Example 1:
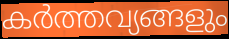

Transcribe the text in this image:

കർത്തവ്യങ്ങളും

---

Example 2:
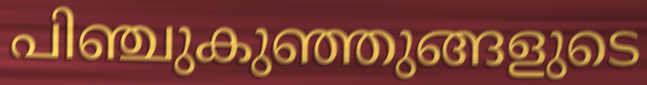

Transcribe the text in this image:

പിഞ്ചുകുഞ്ഞുങ്ങളുടെ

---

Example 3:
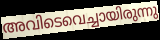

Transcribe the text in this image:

അവിടെവെച്ചായിരുന്നു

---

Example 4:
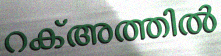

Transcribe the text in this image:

റക്അത്തിൽ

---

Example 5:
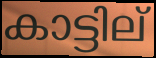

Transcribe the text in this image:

കാട്ടില്